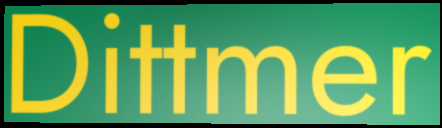
Dittmer